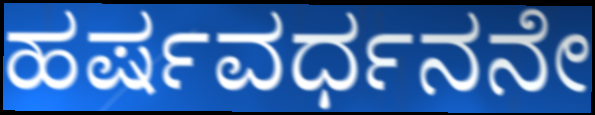
ಹರ್ಷವರ್ಧನನೇ